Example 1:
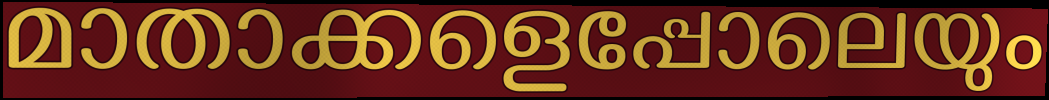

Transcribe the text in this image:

മാതാക്കളെപ്പോലെയും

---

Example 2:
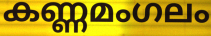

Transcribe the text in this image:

കണ്ണമംഗലം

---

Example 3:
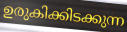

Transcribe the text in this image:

ഉരുകിക്കിടക്കുന്ന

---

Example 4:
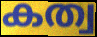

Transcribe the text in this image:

കത്വ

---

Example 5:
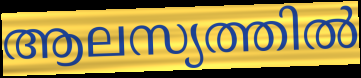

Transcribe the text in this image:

ആലസ്യത്തിൽ